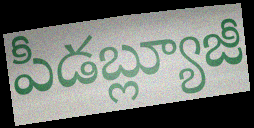
పీడబ్ల్యూజీ